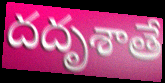
దదృశాతే